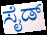
ಸೈಡ್